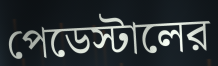
পেডেস্টালের